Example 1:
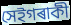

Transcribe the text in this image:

সেইগৰাকী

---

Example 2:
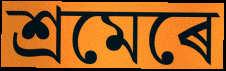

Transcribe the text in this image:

শ্ৰমেৰে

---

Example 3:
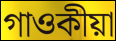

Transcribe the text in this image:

গাওকীয়া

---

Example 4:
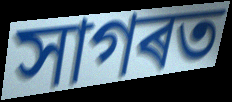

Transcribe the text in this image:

সাগৰত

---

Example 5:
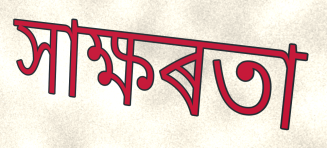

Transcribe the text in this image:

সাক্ষৰতা